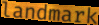
landmark